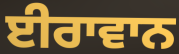
ਈਰਾਵਾਨ